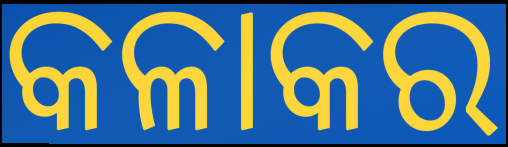
କଳାକର